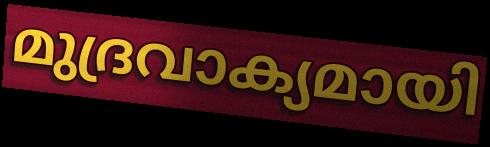
മുദ്രവാക്യമായി